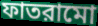
ফাতরামো